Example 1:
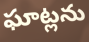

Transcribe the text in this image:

ఘాట్లను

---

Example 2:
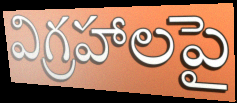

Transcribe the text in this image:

విగ్రహాలపై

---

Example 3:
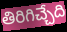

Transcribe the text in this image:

తిరిగిచ్చేది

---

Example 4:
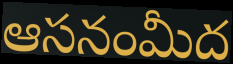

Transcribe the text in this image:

ఆసనంమీద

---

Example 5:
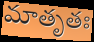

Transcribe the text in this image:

మాతృతః